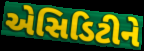
એસિડિટીને